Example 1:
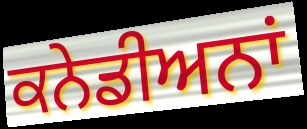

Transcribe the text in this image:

ਕਨੇਡੀਅਨਾਂ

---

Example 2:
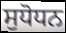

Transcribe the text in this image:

ਸੁਧੋਧਨ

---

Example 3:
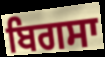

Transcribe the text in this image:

ਬਿਗਸਾ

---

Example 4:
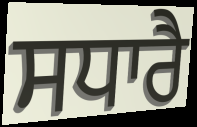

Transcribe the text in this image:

ਸਧਾਰੈ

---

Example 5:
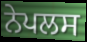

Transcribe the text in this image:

ਨੇਪਲਸ